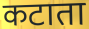
कटाता